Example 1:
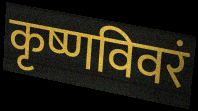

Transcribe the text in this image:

कृष्णविवरं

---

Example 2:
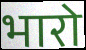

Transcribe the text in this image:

भारो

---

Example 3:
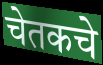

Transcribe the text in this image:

चेतकचे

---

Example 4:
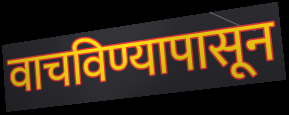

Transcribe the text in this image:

वाचविण्यापासून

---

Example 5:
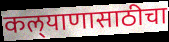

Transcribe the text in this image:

कल्याणासाठीचा